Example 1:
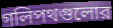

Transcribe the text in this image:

গলিপথগুলোর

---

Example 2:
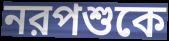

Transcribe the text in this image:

নরপশুকে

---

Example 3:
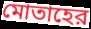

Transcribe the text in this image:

মোতাহের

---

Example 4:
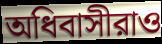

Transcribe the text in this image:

অধিবাসীরাও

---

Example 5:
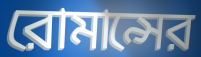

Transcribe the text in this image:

রোমান্সের